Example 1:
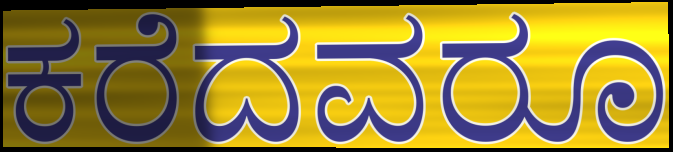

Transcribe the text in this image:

ಕರೆದವರೂ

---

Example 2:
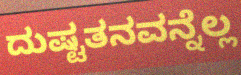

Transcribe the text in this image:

ದುಷ್ಟತನವನ್ನೆಲ್ಲ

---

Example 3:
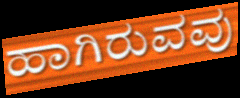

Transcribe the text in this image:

ಹಾಗಿರುವವು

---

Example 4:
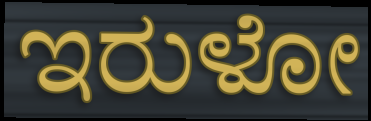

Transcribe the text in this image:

ಇರುಳೋ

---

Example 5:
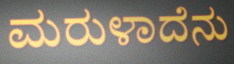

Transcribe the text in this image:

ಮರುಳಾದೆನು